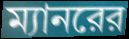
ম্যানরের